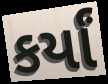
કર્યાં